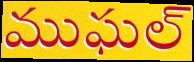
ముఘల్